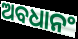
ଅବଧାନଂ